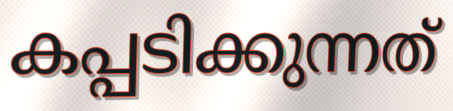
കപ്പടിക്കുന്നത്